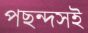
পছন্দসই